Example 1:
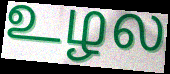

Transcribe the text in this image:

உழல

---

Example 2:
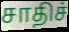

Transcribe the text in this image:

சாதிச்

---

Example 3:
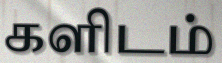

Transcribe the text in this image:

களிடம்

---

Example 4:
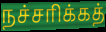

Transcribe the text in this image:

நச்சரிக்கத்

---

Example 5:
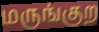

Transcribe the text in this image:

மருங்குற